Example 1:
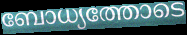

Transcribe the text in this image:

ബോധ്യത്തോടെ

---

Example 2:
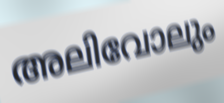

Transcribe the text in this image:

അലിവോലും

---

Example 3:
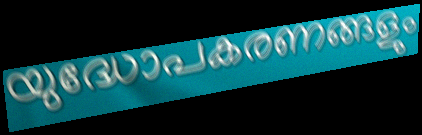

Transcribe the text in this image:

യുദ്ധോപകരണങ്ങളും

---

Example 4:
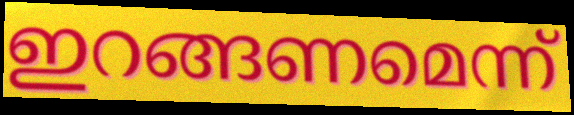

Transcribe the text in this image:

ഇറങ്ങണമെന്ന്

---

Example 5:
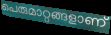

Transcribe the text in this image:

പെരുമാറ്റങ്ങളാണ്